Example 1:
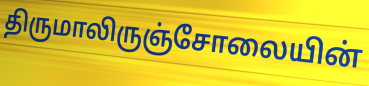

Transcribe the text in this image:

திருமாலிருஞ்சோலையின்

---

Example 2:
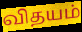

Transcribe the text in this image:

விதயம்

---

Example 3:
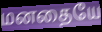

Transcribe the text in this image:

மனதையே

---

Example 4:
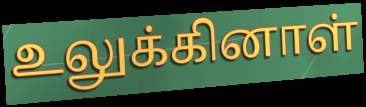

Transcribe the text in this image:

உலுக்கினாள்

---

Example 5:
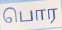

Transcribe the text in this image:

பொர